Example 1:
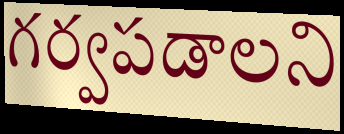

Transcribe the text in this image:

గర్వపడాలని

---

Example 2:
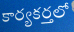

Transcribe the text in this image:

కార్యకర్తలో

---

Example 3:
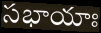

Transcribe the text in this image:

సభాయాః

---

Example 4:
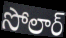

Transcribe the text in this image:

సోలార్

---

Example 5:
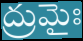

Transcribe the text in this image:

ద్రుమైః